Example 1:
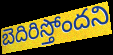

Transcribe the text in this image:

బెదిరిస్తోందని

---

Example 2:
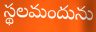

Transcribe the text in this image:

స్థలమందును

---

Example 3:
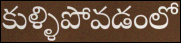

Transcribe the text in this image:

కుళ్ళిపోవడంలో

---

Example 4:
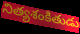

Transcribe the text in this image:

నిత్యశంకితుడు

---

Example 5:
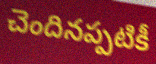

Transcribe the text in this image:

చెందినప్పటికీ